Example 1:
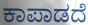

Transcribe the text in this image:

ಕಾಪಾಡದೆ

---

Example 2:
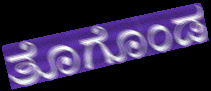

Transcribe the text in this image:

ತೊಗೊಂಡ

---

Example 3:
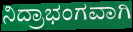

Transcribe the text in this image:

ನಿದ್ರಾಭಂಗವಾಗಿ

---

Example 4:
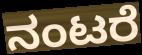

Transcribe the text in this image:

ನಂಟರೆ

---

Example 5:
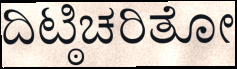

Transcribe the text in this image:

ದಿಟ್ಠಿಚರಿತೋ